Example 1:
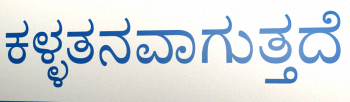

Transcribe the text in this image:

ಕಳ್ಳತನವಾಗುತ್ತದೆ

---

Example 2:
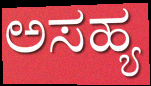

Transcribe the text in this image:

ಅಸಹ್ಯ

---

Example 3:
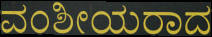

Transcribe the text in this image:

ವಂಶೀಯರಾದ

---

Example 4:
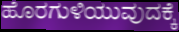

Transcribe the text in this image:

ಹೊರಗುಳಿಯುವುದಕ್ಕೆ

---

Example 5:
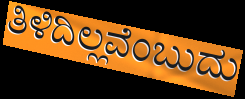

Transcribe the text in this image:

ತಿಳಿದಿಲ್ಲವೆಂಬುದು